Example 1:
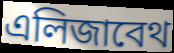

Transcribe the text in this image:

এলিজাবেথ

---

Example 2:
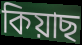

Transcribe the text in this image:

কিয়াছ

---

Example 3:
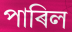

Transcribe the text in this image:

পাৰিল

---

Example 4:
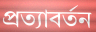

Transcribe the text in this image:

প্ৰত্যাবৰ্তন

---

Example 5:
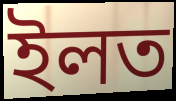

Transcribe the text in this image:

ইলত